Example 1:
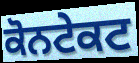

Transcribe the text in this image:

ਕੋਨਟੇਕਟ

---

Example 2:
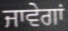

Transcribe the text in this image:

ਜਾਵੇਗਾਂ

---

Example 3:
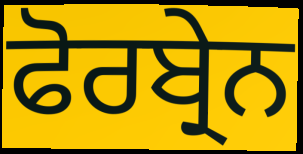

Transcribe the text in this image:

ਫੋਰਬ੍ਰੇਨ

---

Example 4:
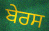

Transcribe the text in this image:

ਬੇਰਸ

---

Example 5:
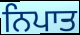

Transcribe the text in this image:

ਨਿਪਾਤ